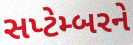
સપ્ટેમ્બરને